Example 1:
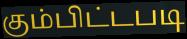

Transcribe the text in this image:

கும்பிட்டபடி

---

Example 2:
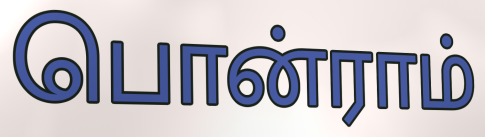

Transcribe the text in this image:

பொன்ராம்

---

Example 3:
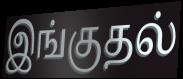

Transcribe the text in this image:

இங்குதல்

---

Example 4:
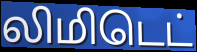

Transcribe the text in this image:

லிமிடெட்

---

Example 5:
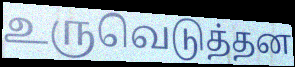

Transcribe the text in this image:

உருவெடுத்தன